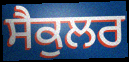
ਸੈਕੁਲਰ